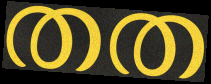
തത